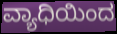
ವ್ಯಾಧಿಯಿಂದ